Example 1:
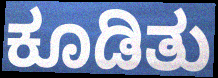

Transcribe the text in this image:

ಕೂಡಿತು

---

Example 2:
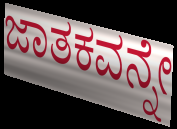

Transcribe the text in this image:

ಜಾತಕವನ್ನೇ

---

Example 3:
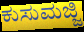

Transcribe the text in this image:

ಕುಸುಮಜ್ಜಿ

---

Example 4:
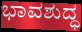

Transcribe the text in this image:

ಭಾವಶುದ್ಧ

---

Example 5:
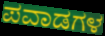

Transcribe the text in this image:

ಪವಾಡಗಳ